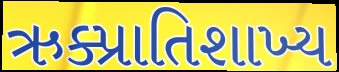
ઋક્પ્રાતિશાખ્ય